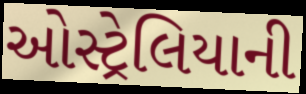
ઓસ્ટ્રેલિયાની